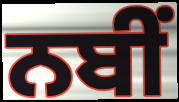
ਨਬੀਂ